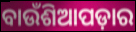
ବାଉଁଶିଆପଡ଼ାର